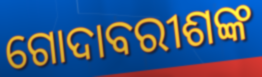
ଗୋଦାବରୀଶଙ୍କ